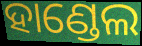
ହାଣ୍ଡେଲ